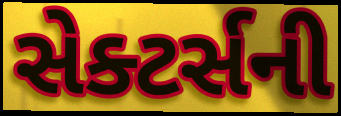
સેક્ટર્સની